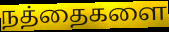
நத்தைகளை